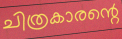
ചിത്രകാരന്റെ